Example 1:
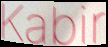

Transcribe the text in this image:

Kabir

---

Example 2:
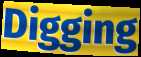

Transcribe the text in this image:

Digging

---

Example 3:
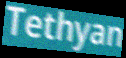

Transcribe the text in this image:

Tethyan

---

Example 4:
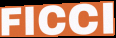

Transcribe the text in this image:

FICCI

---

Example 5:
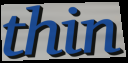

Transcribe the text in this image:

thin